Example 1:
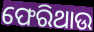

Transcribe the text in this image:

ଫେରିଥାଉ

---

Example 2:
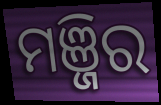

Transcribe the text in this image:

ମଞ୍ଜିର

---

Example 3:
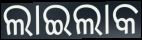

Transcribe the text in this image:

ଲାଇଲାକ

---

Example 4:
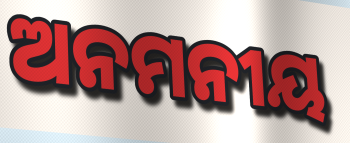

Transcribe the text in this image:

ଅନମନୀୟ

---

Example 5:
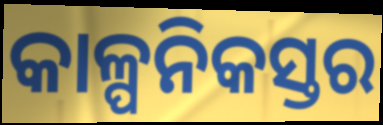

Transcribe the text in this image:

କାଳ୍ପନିକସ୍ତର